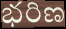
భరిణ